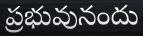
ప్రభువునందు